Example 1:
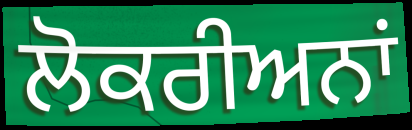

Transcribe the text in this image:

ਲੋਕਰੀਅਨਾਂ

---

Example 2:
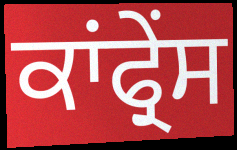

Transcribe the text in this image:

ਕਾਂਫ੍ਰੇਂਸ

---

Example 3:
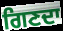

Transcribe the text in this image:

ਗਿਣਦਾ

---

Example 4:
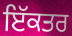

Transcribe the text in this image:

ਇੱਕਤਰ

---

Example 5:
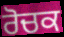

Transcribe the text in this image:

ਰੋਚਕ